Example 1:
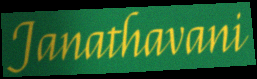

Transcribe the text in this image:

Janathavani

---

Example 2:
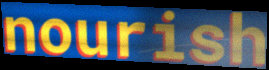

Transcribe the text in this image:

nourish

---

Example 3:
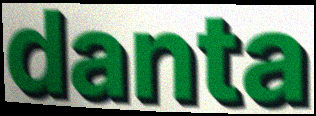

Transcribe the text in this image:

danta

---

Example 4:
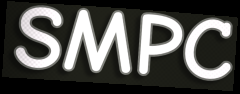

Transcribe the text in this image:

SMPC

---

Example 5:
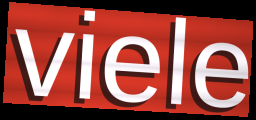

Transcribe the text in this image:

viele